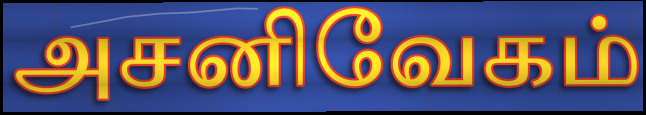
அசனிவேகம்